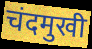
चंदमुखी